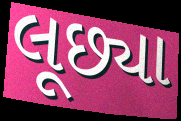
લૂછ્યા